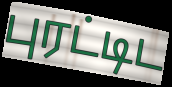
புரட்டிட